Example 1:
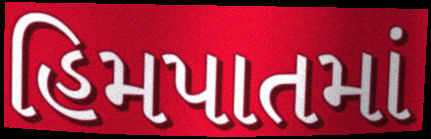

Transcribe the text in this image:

હિમપાતમાં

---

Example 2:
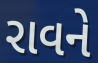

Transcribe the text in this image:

રાવને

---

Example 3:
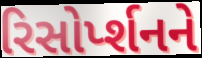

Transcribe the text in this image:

રિસોર્પ્શનને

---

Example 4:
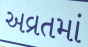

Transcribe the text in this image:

અવ્રતમાં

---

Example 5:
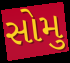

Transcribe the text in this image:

સોમુ